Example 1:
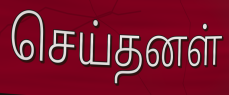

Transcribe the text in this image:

செய்தனள்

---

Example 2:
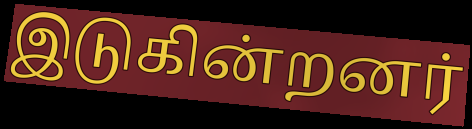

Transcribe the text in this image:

இடுகின்றனர்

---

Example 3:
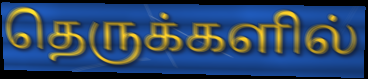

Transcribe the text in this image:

தெருக்களில்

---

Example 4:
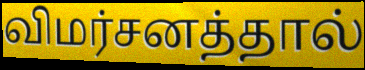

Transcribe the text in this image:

விமர்சனத்தால்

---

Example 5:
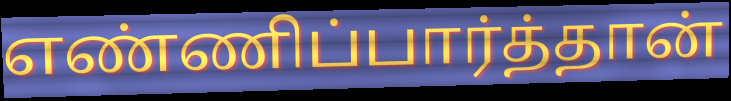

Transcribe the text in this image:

எண்ணிப்பார்த்தான்